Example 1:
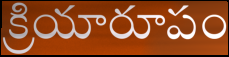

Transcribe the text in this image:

క్రియారూపం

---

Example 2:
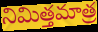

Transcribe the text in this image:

నిమిత్తమాత్ర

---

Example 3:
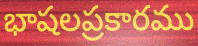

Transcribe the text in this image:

భాషలప్రకారము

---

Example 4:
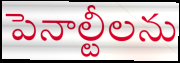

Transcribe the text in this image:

పెనాల్టీలను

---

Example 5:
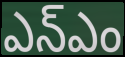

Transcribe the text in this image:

ఎన్ఎం